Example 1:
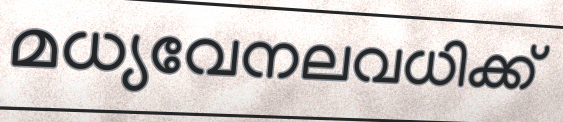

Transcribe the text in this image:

മധ്യവേനലവധിക്ക്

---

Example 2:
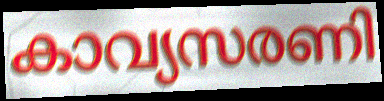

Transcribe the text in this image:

കാവ്യസരണി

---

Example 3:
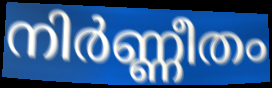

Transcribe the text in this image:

നിർണ്ണീതം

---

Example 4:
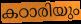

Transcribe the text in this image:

കഠാരിയും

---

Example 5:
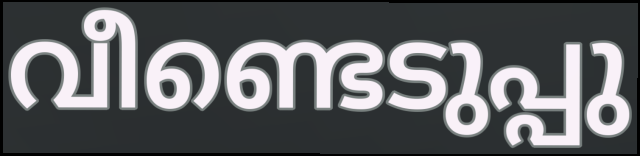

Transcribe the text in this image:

വീണ്ടെടുപ്പു